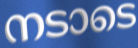
നടാടെ